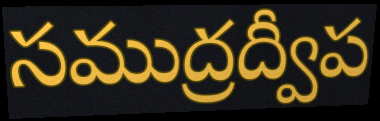
సముద్రద్వీప